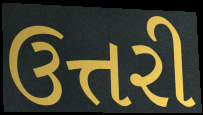
ઉત્તરી